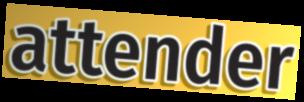
attender